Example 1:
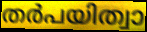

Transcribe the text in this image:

തർപയിത്വാ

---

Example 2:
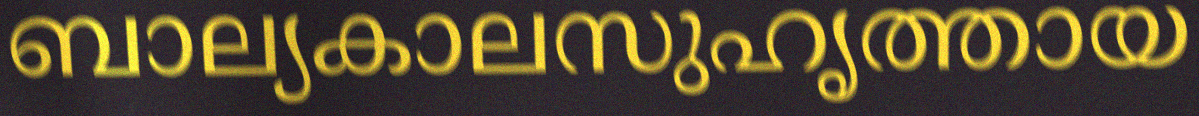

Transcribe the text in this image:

ബാല്യകാലസുഹൃത്തായ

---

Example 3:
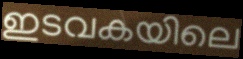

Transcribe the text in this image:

ഇടവകയിലെ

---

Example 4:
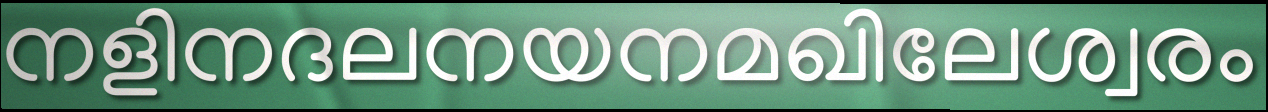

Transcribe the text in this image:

നളിനദലനയനമഖിലേശ്വരം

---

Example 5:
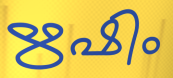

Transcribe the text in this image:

ഋഷിം